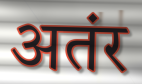
अतंर